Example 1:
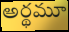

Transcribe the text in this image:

అర్థమూ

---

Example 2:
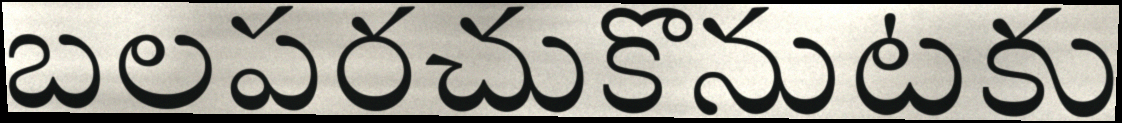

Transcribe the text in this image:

బలపరచుకొనుటకు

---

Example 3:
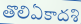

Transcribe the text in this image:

తొలిఏకాదశి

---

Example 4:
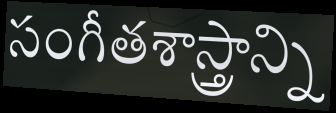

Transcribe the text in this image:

సంగీతశాస్త్రాన్ని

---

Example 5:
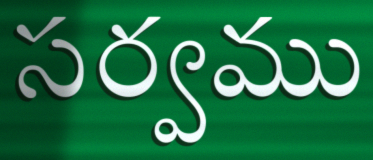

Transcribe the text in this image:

సర్వము